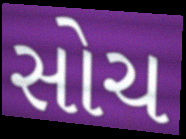
સોચ